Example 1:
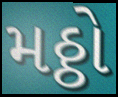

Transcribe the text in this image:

મઠ્ઠો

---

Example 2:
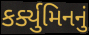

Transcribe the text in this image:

કર્ક્યુમિનનું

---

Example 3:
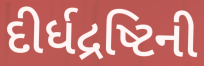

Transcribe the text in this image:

દીર્ધદ્રષ્ટિની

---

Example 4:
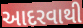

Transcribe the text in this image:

આદરવાથી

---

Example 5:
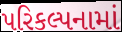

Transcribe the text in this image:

પરિકલ્પનામાં